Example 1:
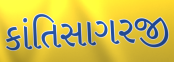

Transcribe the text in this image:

કાંતિસાગરજી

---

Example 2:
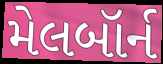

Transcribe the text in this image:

મેલબૉર્ન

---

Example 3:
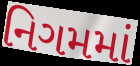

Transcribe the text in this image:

નિગમમાં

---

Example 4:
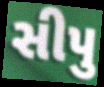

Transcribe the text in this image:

સીપુ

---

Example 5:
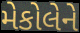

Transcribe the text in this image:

મેકોલેને